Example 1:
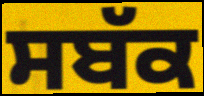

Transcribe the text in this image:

ਸਬੱਕ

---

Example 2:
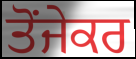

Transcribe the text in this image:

ਤੋਂਜੇਕਰ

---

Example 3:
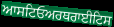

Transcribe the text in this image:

ਆਸਟਿਓਅਰਥਰਾਈਟਿਸ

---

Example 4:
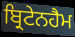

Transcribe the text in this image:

ਬ੍ਰਿਟੇਨਹੈਮ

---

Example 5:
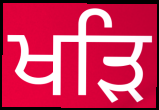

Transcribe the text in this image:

ਖੜਿ